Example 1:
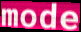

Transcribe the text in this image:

mode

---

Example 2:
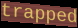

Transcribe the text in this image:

trapped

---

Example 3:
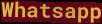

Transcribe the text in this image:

Whatsapp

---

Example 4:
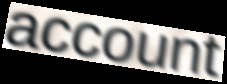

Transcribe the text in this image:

account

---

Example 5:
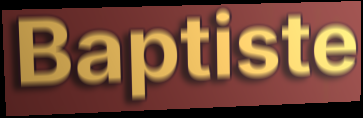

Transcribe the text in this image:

Baptiste